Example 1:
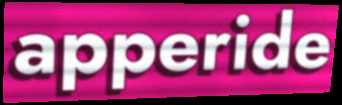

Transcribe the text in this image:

apperide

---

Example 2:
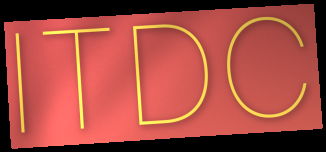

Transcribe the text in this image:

ITDC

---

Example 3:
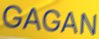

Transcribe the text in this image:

GAGAN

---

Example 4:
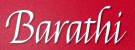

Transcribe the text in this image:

Barathi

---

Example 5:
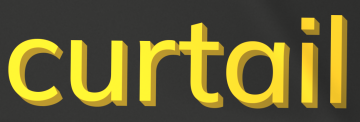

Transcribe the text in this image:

curtail